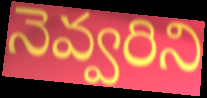
నెవ్వరిని